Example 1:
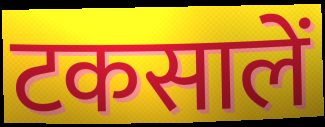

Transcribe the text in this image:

टकसालें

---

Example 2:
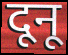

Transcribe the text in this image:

दूनू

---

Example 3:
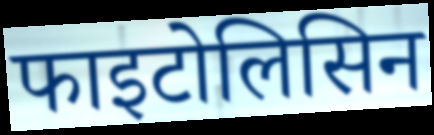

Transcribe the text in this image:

फाइटोलिसिन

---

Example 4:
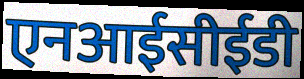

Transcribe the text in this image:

एनआईसीईडी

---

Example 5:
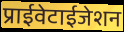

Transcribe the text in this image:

प्राईवेटाईजेशन